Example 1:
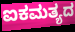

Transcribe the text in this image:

ಐಕಮತ್ಯದ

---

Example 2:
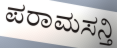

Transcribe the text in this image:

ಪರಾಮಸನ್ತಿ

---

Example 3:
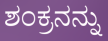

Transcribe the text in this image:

ಶಂಕ್ರನನ್ನು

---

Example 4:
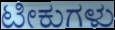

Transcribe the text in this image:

ಟೀಕುಗಳು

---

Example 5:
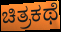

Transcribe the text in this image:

ಚಿತ್ರಕಥೆ